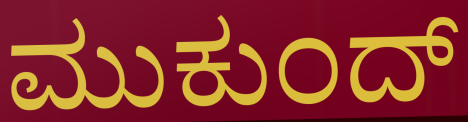
ಮುಕುಂದ್